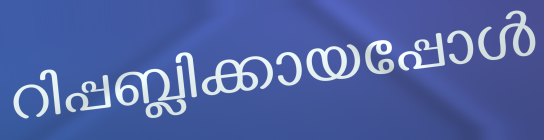
റിപ്പബ്ലിക്കായപ്പോൾ